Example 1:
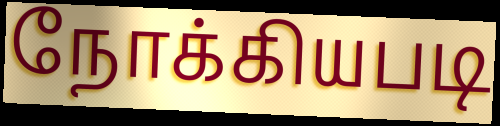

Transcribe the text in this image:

நோக்கியபடி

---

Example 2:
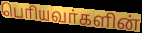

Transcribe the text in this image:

பெரியவர்களின்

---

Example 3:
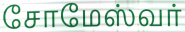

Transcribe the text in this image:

சோமேஸ்வர்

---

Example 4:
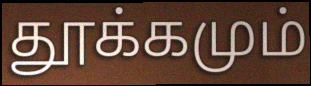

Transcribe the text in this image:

தூக்கமும்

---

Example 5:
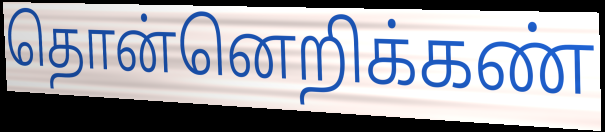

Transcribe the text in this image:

தொன்னெறிக்கண்